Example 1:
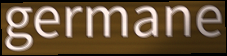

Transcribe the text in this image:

germane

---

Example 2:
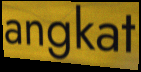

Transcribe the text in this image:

angkat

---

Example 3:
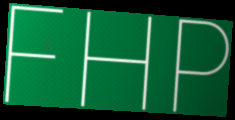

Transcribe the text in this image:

FHP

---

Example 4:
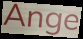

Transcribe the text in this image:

Ange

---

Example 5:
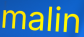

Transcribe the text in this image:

malin